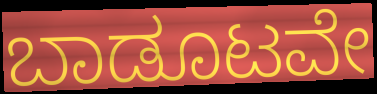
ಬಾಡೂಟವೇ